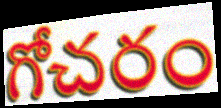
గోచరం